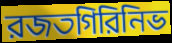
রজতগিরিনিভ